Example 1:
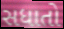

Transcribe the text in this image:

સધાતો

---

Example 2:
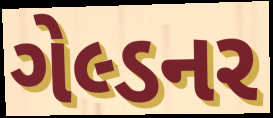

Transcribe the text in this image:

ગેલ્ડનર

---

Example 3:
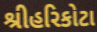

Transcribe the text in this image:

શ્રીહરિકોટા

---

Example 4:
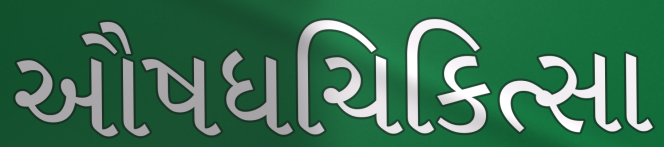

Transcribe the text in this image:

ઔષધચિકિત્સા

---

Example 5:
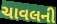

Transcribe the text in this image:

ચાવલની